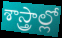
శాస్త్రాల్లో